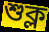
শুক্ল